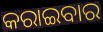
କରାଇବାର